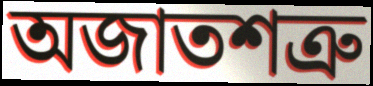
অজাতশত্রু